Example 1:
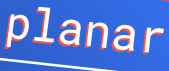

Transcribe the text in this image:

planar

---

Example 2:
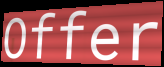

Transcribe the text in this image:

Offer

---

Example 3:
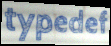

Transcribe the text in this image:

typedef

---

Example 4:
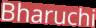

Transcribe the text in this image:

Bharuchi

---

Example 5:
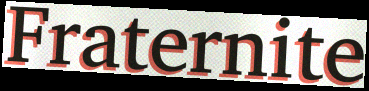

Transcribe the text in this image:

Fraternite